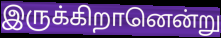
இருக்கிறானென்று